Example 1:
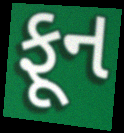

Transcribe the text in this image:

ફૂન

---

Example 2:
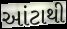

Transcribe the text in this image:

આંટાથી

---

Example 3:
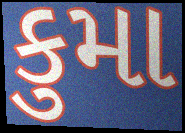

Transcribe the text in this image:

કુમા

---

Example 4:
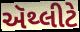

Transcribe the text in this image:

ઍથ્લીટે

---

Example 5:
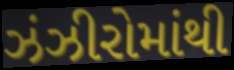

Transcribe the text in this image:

ઝંઝીરોમાંથી